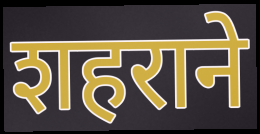
शहराने